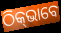
ଠିକ୍‌ଭାବେ